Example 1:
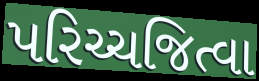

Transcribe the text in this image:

પરિચ્ચજિત્વા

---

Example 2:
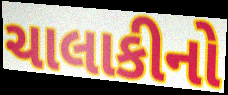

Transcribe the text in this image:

ચાલાકીનો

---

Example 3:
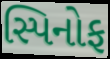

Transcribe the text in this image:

સ્પિનોફ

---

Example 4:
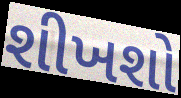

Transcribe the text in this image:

શીખશો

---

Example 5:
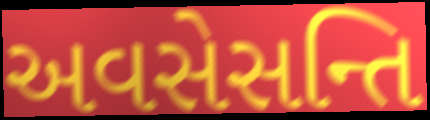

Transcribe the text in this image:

અવસેસન્તિ